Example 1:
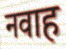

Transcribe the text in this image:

नवाह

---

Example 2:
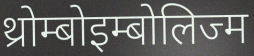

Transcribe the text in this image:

थ्रोम्बोइम्बोलिज्म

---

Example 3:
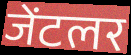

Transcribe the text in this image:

जेंटलर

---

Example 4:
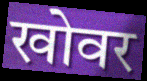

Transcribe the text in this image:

खोवर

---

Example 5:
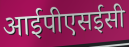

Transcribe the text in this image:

आईपीएसईसी